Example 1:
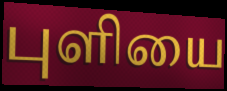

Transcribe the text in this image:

புளியை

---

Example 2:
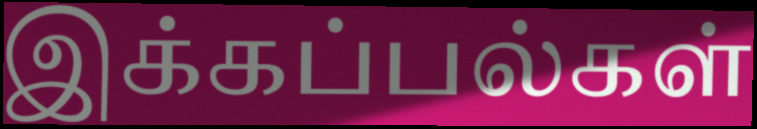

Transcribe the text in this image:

இக்கப்பல்கள்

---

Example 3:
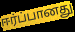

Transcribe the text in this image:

ஈர்ப்பானது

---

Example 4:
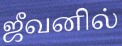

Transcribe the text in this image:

ஜீவனில்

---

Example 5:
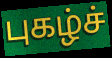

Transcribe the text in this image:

புகழ்ச்